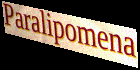
Paralipomena